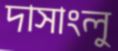
দাসাংলু